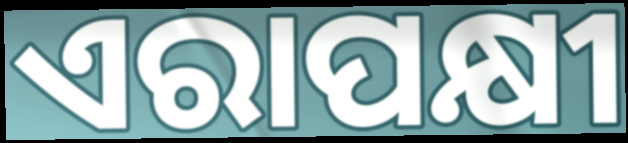
ଏରାପକ୍ଷୀ